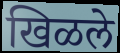
खिळले